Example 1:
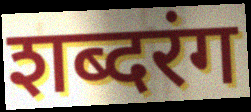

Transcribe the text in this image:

शब्दरंग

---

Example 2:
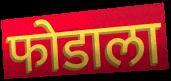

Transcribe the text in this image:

फोडाला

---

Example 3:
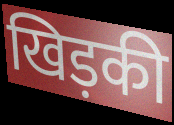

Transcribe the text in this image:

खिड़की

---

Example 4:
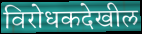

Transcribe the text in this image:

विरोधकदेखील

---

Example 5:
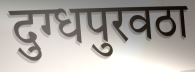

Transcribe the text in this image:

दुग्धपुरवठा